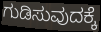
ಗುಡಿಸುವುದಕ್ಕೆ